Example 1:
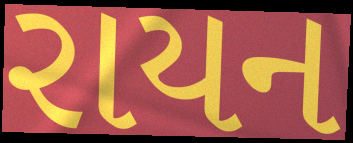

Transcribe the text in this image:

રાયન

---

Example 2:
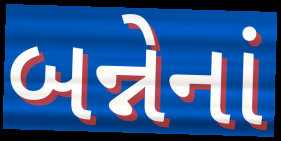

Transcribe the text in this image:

બન્નેનાં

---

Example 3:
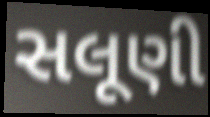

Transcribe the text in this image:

સલૂણી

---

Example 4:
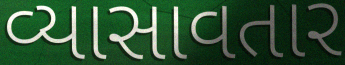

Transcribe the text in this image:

વ્યાસાવતાર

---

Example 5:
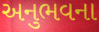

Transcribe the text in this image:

અનુભવના